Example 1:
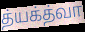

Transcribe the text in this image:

த்யக்த்வா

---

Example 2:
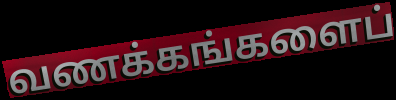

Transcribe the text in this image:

வணக்கங்களைப்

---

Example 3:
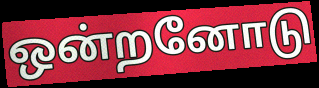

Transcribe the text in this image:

ஒன்றனோடு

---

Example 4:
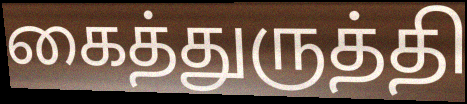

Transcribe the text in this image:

கைத்துருத்தி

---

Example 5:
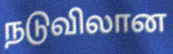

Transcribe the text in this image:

நடுவிலான